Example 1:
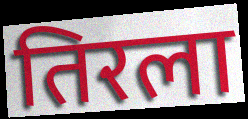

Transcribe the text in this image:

तिरला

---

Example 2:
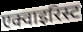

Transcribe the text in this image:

एक्वाइरिस्ट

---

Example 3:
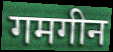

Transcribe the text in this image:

गमगीन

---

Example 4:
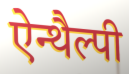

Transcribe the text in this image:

ऐन्थैल्पी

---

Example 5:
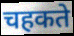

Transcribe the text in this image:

चहकते